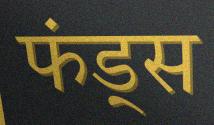
फंड्‌स